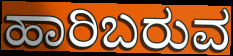
ಹಾರಿಬರುವ